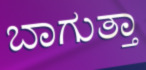
ಬಾಗುತ್ತಾ